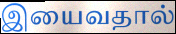
இயைவதால்